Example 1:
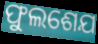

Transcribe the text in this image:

ଫୁଲଶେଯ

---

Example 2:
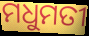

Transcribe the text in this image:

ମଧୁମତୀ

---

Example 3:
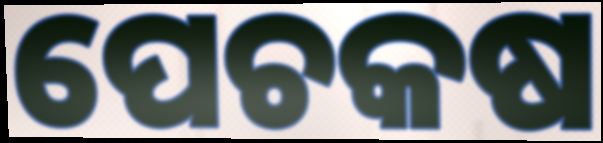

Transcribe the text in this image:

ପେଚକଷ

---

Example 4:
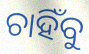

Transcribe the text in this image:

ଚାହିଁବୁ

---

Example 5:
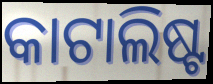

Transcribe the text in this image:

କାଟାଲିଷ୍ଟ